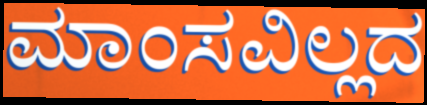
ಮಾಂಸವಿಲ್ಲದ